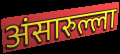
अंसारुल्ला